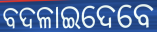
ବଦଳାଇଦେବେ